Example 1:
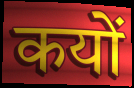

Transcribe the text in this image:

कयों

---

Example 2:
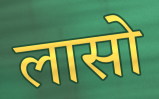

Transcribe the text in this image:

लासो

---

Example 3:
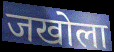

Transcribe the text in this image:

जखोला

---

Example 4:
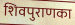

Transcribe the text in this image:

शिवपुराणका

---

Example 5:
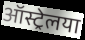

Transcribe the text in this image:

ऑस्ट्रेलया